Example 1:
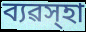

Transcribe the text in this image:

ব্যৱস্হা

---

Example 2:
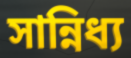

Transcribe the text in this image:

সান্নিধ্য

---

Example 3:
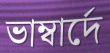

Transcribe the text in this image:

ভাম্বাৰ্দে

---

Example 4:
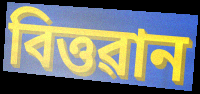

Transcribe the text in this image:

বিত্তৱান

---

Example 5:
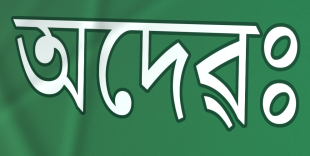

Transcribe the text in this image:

অদেৱঃ